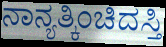
ನಾನ್ಯತ್ಕಿಂಚಿದಸ್ತಿ